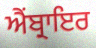
ਐਂਬ੍ਰਾਇਰ